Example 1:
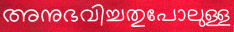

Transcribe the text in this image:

അനുഭവിച്ചതുപോലുള്ള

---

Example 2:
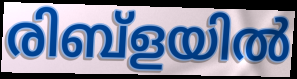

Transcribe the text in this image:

രിബ്ളയിൽ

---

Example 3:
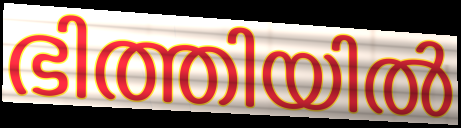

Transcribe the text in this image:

ഭിത്തിയിൽ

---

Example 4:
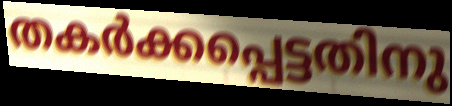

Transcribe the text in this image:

തകർക്കപ്പെട്ടതിനു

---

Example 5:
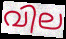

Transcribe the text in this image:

വില